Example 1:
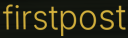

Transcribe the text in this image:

firstpost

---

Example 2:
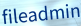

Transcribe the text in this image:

fileadmin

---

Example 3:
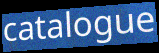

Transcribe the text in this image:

catalogue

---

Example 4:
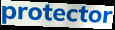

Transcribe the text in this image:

protector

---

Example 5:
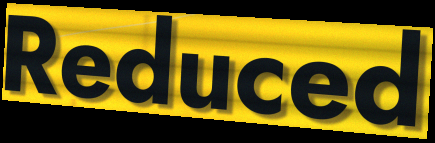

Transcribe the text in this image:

Reduced